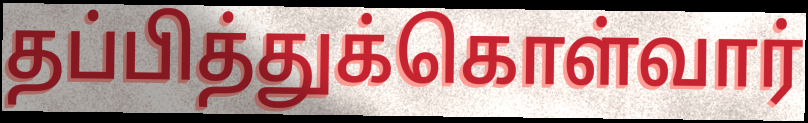
தப்பித்துக்கொள்வார்